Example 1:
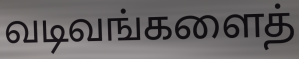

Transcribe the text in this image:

வடிவங்களைத்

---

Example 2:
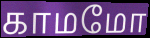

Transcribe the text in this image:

காமமோ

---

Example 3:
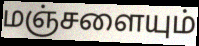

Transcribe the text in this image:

மஞ்சளையும்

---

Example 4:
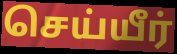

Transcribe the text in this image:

செய்யீர்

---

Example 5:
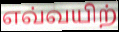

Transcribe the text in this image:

எவ்வயிற்